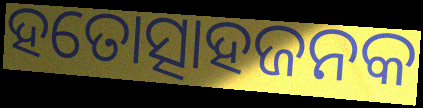
ହତୋତ୍ସାହଜନକ